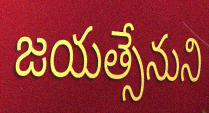
జయత్సేనుని